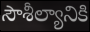
సౌశీల్యానికి